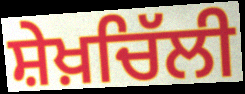
ਸ਼ੇਖ਼ਚਿੱਲੀ